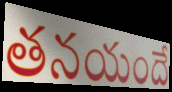
తనయందే